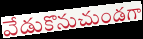
వేడుకొనుచుండగా